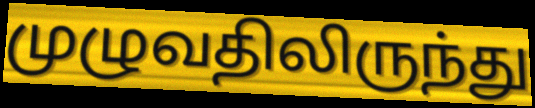
முழுவதிலிருந்து